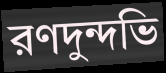
রণদুন্দভি